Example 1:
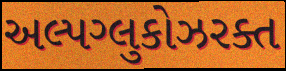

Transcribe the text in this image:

અલ્પગ્લુકોઝરક્ત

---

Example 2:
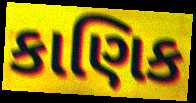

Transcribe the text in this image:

કાણિક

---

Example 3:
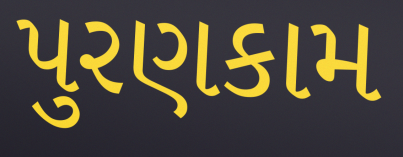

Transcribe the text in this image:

પુરણકામ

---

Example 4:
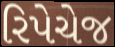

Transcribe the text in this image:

રિપેચેજ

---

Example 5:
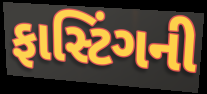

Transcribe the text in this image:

ફાસ્ટિંગની